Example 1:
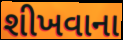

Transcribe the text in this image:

શીખવાના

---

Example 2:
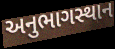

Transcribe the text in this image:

અનુભાગસ્થાન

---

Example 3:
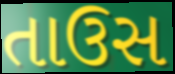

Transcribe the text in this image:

તાઉસ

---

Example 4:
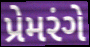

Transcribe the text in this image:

પ્રેમરંગે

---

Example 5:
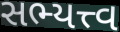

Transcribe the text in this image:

સભ્યત્ત્વ